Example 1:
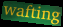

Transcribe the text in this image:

wafting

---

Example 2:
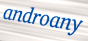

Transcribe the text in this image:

androany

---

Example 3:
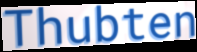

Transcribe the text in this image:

Thubten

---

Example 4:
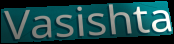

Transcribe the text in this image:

Vasishta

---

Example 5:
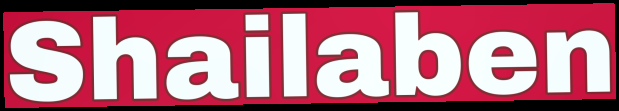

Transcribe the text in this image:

Shailaben